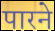
पारने